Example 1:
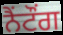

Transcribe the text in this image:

ਨੈਂਟੌਂਗ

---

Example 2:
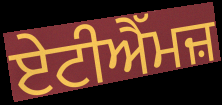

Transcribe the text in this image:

ਏਟੀਐੱਮਜ਼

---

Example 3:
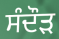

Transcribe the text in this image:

ਸੰਦੌੜ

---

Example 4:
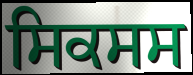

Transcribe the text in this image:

ਸਿਕਸਸ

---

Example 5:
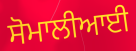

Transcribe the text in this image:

ਸੋਮਾਲੀਆਈ